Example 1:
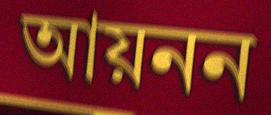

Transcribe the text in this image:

আয়নন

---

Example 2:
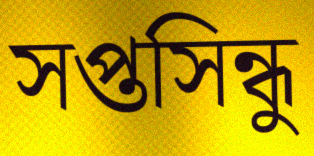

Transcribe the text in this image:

সপ্তসিন্ধু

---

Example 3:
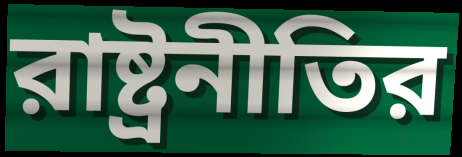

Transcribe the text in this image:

রাষ্ট্রনীতির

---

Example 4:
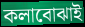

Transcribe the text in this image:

কলাবোঝাই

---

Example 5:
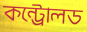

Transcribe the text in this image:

কন্ট্রোলড